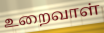
உறைவாள்